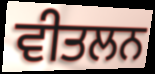
ਵੀਤਲਨ